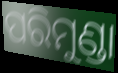
ପରିମୁଣ୍ଡା